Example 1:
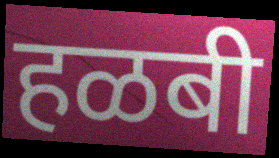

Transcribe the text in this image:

हळबी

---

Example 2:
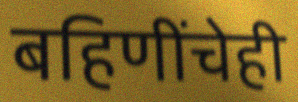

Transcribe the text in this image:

बहिणींचेही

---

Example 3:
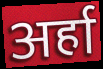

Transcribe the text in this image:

अर्हा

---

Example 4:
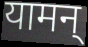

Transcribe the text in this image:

यामन्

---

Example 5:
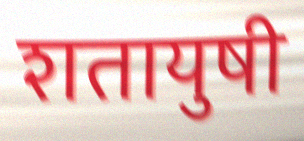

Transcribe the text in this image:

शतायुषी